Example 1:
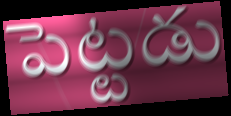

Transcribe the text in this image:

పెట్టడు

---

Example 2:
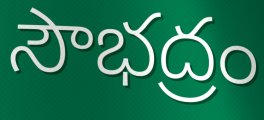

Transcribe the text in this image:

సౌభద్రం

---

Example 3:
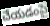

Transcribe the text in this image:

చేయడంపై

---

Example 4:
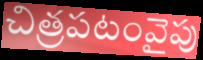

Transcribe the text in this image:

చిత్రపటంవైపు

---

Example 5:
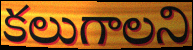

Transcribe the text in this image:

కలుగాలని